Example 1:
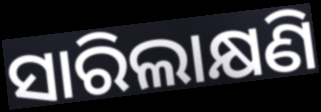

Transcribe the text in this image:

ସାରିଲାକ୍ଷଣି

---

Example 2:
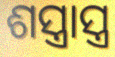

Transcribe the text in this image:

ଶସ୍ତ୍ରାସ୍ତ୍ର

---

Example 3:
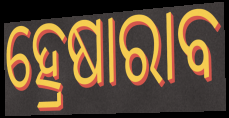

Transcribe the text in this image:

ହ୍ରେଷାରାବ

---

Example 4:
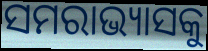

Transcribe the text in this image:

ସମରାଭ୍ୟାସକୁ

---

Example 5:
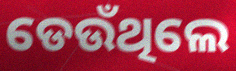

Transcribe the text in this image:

ଡେଉଁଥିଲେ